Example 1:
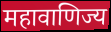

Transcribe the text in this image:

महावाणिज्य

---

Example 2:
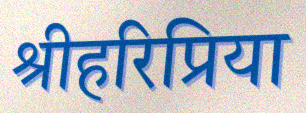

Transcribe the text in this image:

श्रीहरिप्रिया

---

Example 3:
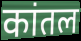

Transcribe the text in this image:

कांतल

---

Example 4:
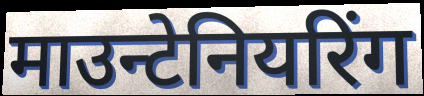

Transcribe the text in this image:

माउन्टेनियरिंग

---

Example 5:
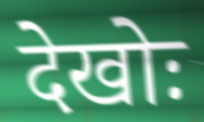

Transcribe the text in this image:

देखोः